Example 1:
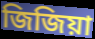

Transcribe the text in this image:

জিজিয়া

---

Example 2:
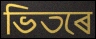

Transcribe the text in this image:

ভিতৰে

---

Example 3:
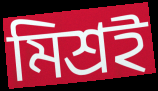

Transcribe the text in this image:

মিশ্ৰই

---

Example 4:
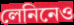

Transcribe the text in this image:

লেনিনেও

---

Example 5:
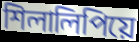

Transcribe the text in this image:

শিলালিপিয়ে